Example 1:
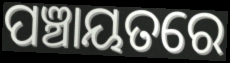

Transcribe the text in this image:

ପଞ୍ଚାୟତରେ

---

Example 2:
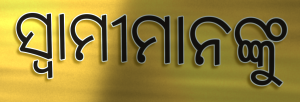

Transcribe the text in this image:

ସ୍ଵାମୀମାନଙ୍କୁ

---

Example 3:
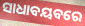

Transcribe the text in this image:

ସାଧାବୟବରେ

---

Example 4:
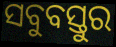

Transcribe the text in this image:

ସବୁବସ୍ତୁର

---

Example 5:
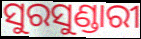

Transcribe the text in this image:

ସୁରସୁଣ୍ଡାରୀ